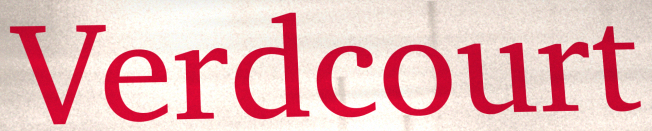
Verdcourt